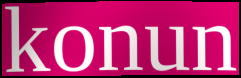
konun